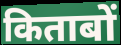
किताबों